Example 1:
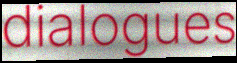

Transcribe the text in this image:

dialogues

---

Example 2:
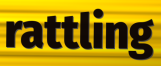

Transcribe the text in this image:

rattling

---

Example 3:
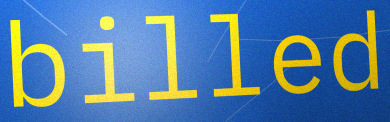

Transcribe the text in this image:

billed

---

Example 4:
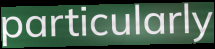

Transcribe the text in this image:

particularly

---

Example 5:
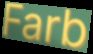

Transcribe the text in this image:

Farb